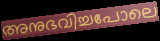
അനുഭവിച്ചപോലെ